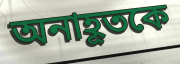
অনাহূতকে